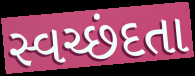
સ્વચ્છંદતા